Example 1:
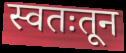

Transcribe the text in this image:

स्वतःतून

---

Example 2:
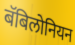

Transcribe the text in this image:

बॅबिलोनियन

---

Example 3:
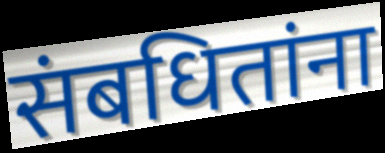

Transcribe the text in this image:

संबधितांना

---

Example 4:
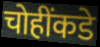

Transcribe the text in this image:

चोहींकडे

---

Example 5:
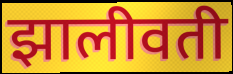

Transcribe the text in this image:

झालीवती